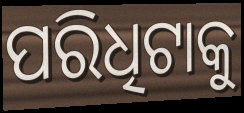
ପରିଧିଟାକୁ